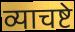
व्याचष्टे